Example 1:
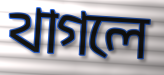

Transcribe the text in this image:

থাগলে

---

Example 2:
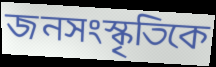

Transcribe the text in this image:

জনসংস্কৃতিকে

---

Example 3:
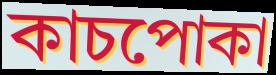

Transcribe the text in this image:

কাচপোকা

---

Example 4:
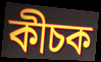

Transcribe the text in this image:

কীচক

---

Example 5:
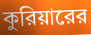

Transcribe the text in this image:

কুরিয়ারের